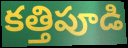
కత్తిపూడి